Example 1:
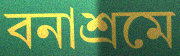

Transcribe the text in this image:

বনাশ্রমে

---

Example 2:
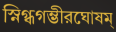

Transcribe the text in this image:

স্নিগ্ধগম্ভীরঘোষম্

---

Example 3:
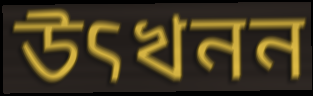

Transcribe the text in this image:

উৎখনন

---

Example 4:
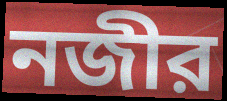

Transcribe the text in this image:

নজীর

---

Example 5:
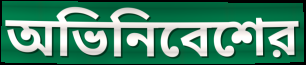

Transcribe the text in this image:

অভিনিবেশের